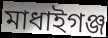
মাধাইগঞ্জ